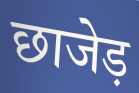
छाजेड़